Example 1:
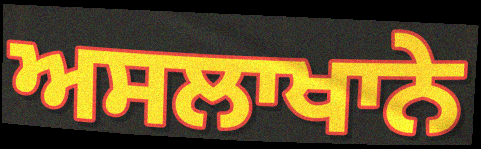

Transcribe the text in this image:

ਅਸਲਾਖਾਨੇ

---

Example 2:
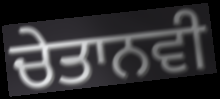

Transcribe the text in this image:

ਚੇਤਾਨਵੀ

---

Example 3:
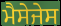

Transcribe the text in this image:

ਮੈਸੇਜੇਸ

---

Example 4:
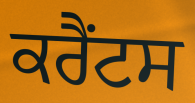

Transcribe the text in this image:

ਕਰੈਂਟਸ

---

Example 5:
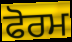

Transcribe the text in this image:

ਫੋਰਮ